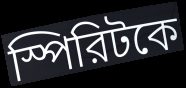
স্পিরিটকে